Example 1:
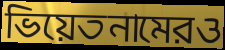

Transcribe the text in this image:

ভিয়েতনামেরও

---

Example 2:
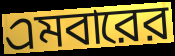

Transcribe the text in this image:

এমবারের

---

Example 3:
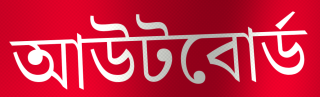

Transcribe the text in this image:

আউটবোর্ড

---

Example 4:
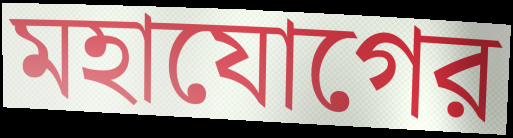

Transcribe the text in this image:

মহাযোগের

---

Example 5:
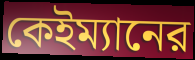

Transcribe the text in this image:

কেইম্যানের